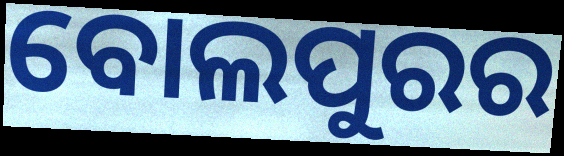
ବୋଲପୁରର